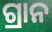
ଗ୍ରାନ